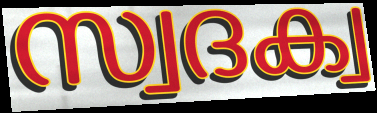
സ്വദക്വ